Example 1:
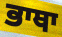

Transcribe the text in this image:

ਭਾਥਾ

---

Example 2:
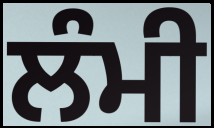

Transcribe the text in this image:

ਲੰਮੀ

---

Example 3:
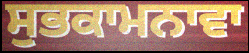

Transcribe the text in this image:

ਸੁਭਕਾਮਨਾਵਾ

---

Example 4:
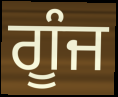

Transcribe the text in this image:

ਗੂੰਜ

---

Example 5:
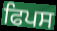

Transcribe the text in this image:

ਫਿਪਸ